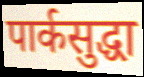
पार्कसुद्धा